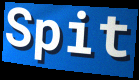
Spit